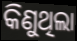
କିଣୁଥିଲା